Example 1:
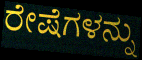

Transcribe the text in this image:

ರೇಷೆಗಳನ್ನು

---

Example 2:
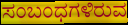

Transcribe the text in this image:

ಸಂಬಂಧಗಳಿರುವ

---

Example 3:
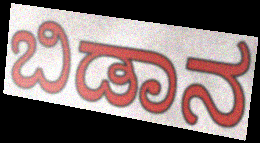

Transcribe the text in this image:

ಬಿಡಾನ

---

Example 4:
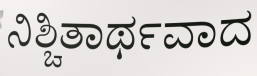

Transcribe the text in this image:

ನಿಶ್ಚಿತಾರ್ಥವಾದ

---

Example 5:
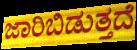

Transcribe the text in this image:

ಜಾರಿಬಿಡುತ್ತದೆ